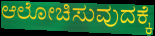
ಆಲೋಚಿಸುವುದಕ್ಕೆ